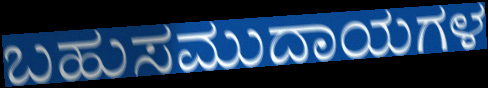
ಬಹುಸಮುದಾಯಗಳ